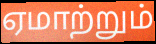
ஏமாற்றும்